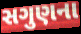
સગુણના